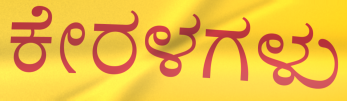
ಕೇರಳಗಳು